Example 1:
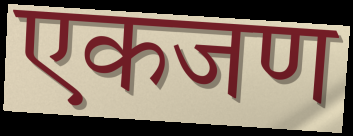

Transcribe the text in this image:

एकजण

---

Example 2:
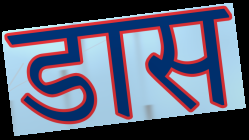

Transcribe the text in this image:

डास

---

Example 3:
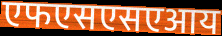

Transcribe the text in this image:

एफएसएसएआय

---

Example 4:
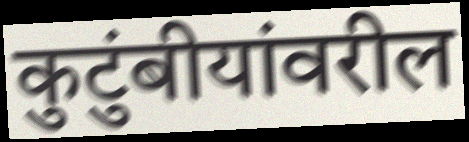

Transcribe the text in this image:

कुटुंबीयांवरील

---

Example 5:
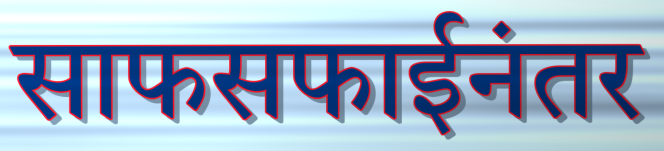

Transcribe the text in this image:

साफसफाईनंतर